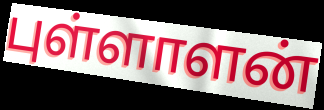
புள்ளாளன்